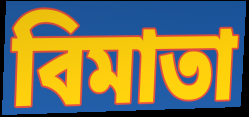
বিমাতা